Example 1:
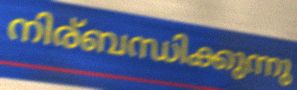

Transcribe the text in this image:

നിര്ബന്ധിക്കുന്നു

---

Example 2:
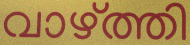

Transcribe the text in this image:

വാഴ്ത്തി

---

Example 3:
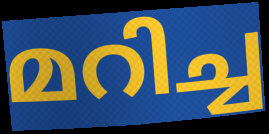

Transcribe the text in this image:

മറിച്ച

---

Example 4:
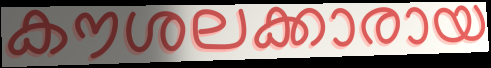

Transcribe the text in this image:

കൗശലക്കാരായ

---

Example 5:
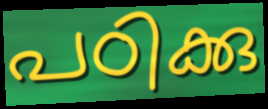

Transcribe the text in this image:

പഠിക്കു